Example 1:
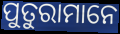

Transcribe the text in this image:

ପୁତୁରାମାନେ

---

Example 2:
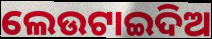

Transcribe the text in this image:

ଲେଉଟାଇଦିଅ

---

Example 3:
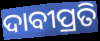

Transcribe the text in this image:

ଦାବୀପ୍ରତି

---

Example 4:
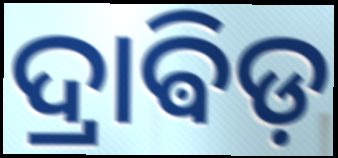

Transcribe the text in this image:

ଦ୍ରାଵିଡ଼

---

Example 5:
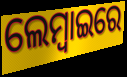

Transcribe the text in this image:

ଲେମ୍ବାଇରେ